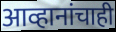
आव्हानांचाही